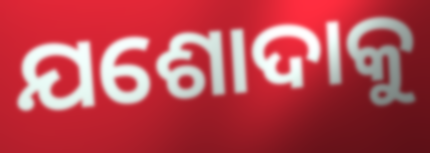
ଯଶୋଦାକୁ